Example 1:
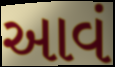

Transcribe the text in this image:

આવં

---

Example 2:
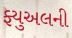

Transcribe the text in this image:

ફ્યુઅલની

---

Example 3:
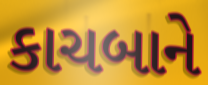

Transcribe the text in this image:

કાચબાને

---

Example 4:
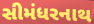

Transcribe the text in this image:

સીમંધરનાથ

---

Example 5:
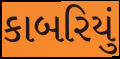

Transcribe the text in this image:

કાબરિયું